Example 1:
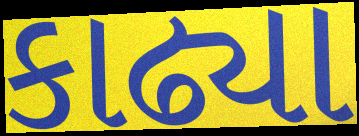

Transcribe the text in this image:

કાઢ્યા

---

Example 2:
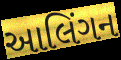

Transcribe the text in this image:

આલિંગન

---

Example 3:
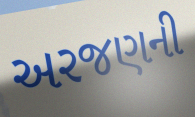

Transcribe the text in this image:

અરજણની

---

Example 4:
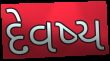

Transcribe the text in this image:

દેવષ્ય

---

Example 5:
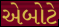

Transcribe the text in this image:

એબોટે